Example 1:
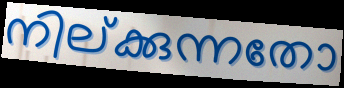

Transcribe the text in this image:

നില്ക്കുന്നതോ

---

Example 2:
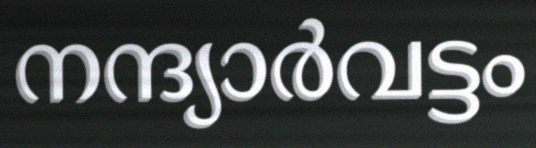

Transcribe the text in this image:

നന്ദ്യാർവട്ടം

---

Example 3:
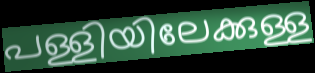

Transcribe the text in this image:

പള്ളിയിലേക്കുള്ള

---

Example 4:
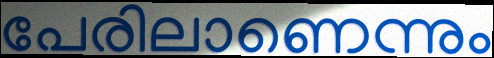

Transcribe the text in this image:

പേരിലാണെന്നും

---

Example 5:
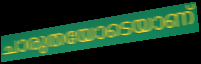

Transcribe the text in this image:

ചാരുതയോടെയാണ്